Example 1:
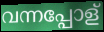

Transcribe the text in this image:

വന്നപ്പോള്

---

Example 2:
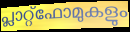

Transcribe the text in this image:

പ്ലാറ്റ്ഫോമുകളും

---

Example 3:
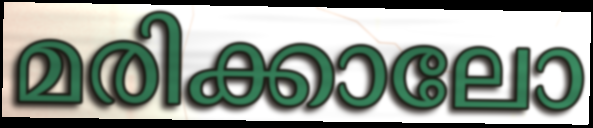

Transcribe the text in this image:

മരിക്കാലോ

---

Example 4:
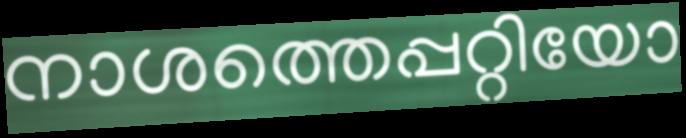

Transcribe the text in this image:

നാശത്തെപ്പറ്റിയോ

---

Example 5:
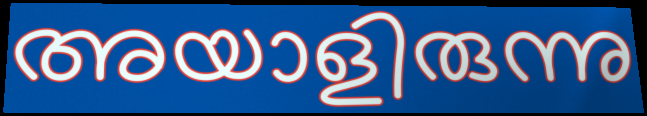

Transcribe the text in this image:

അയാളിരുന്നു